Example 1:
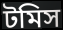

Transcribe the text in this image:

টমিস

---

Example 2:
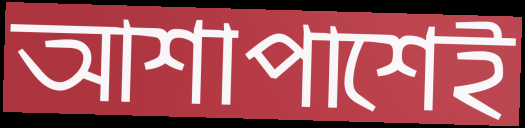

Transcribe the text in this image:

আশাপাশেই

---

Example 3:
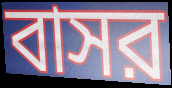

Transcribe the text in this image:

বাসর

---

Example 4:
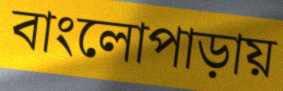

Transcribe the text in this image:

বাংলোপাড়ায়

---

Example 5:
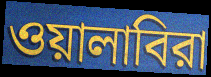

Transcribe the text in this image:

ওয়ালাবিরা